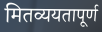
मितव्ययतापूर्ण